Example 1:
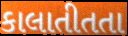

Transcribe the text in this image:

કાલાતીતતા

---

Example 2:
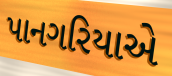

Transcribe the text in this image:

પાનગરિયાએ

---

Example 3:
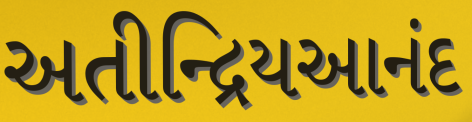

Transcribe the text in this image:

અતીન્દ્રિયઆનંદ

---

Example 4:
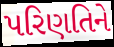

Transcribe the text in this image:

પરિણતિને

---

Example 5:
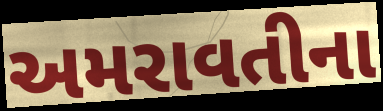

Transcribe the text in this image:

અમરાવતીના